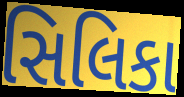
સિલિકા